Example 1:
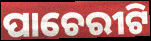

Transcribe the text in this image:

ପାଚେରୀଟି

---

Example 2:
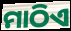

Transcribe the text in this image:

ମାଠିଏ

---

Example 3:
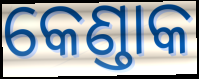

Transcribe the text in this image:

କେଣ୍ଡାକ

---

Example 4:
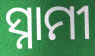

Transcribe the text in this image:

ସ୍ନାମୀ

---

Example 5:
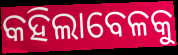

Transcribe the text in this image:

କହିଲାବେଳକୁ